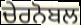
ਚੇਰਨੋਬਲ